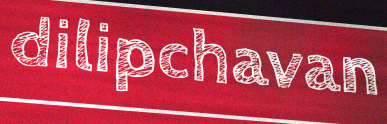
dilipchavan